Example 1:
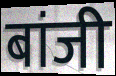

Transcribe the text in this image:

बांजी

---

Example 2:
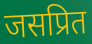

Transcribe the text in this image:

जसप्रित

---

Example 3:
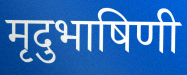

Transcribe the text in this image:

मृदुभाषिणी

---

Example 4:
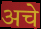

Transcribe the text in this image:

अचे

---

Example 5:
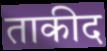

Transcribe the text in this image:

ताकीद